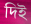
দিই